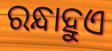
ରନ୍ଧାହୁଏ